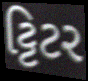
ટ્ટિટર